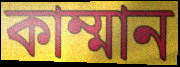
কাম্মান